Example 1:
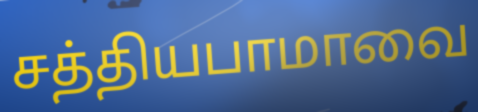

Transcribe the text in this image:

சத்தியபாமாவை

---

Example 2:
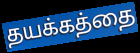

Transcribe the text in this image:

தயக்கத்தை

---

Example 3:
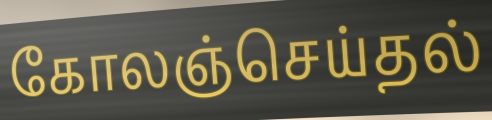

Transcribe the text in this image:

கோலஞ்செய்தல்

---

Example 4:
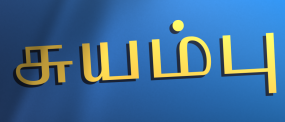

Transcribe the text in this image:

சுயம்பு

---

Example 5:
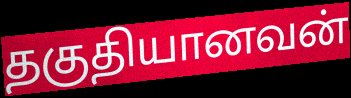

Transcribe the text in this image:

தகுதியானவன்